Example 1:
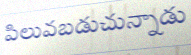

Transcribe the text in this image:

పిలువబడుచున్నాడు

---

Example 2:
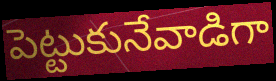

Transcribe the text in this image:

పెట్టుకునేవాడిగా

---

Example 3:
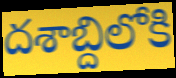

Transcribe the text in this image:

దశాబ్దిలోకి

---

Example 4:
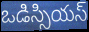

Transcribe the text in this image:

ఒడిస్సియస్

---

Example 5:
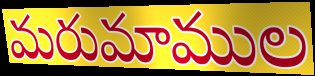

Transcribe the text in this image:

మరుమాముల